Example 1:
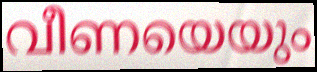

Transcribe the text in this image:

വീണയെയും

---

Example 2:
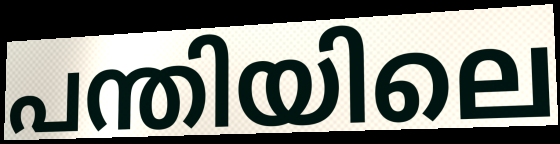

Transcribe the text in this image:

പന്തിയിലെ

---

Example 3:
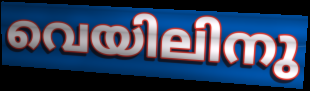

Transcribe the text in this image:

വെയിലിനു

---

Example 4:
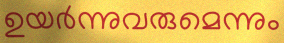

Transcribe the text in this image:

ഉയർന്നുവരുമെന്നും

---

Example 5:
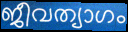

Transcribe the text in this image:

ജീവത്യാഗം